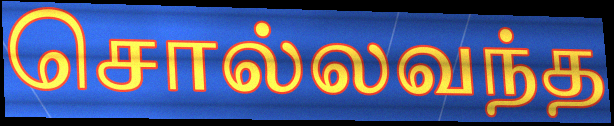
சொல்லவந்த